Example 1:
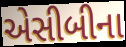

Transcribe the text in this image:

એસીબીના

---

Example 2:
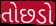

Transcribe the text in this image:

તોછડો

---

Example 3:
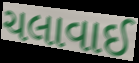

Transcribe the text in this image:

ચલાવાઈ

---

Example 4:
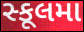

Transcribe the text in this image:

સ્કૂલમા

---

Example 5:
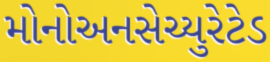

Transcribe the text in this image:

મોનોઅનસેચ્યુરેટેડ